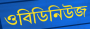
ওবিডিনিউজ